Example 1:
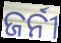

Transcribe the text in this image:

ଜର୍ନୀ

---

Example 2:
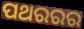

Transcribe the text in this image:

ପଥରରର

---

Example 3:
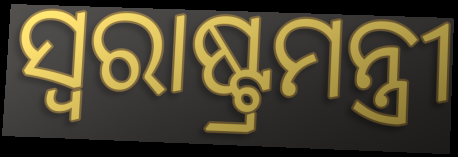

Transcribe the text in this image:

ସ୍ବରାଷ୍ଟ୍ରମନ୍ତ୍ରୀ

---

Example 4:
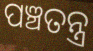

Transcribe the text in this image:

ପଞ୍ଚତନ୍ତ୍ର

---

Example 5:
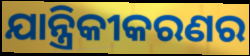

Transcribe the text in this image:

ଯାନ୍ତ୍ରିକୀକରଣର